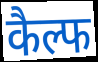
कैल्फ